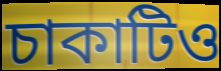
চাকাটিও